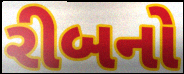
રીબનો